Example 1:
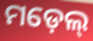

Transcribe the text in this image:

ମଡ଼େଲ୍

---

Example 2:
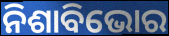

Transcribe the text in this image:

ନିଶାବିଭୋର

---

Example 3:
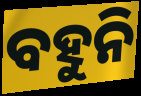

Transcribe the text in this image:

ବହୁନି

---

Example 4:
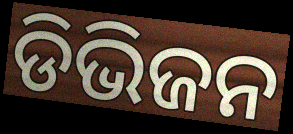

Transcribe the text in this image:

ଡିଭିଜନ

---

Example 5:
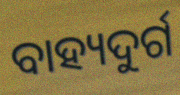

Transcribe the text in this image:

ବାହ୍ୟଦୁର୍ଗ